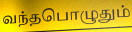
வந்தபொழுதும்